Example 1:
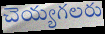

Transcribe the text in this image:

చెయ్యగలరు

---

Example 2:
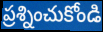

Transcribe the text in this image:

ప్రశ్నించుకోండి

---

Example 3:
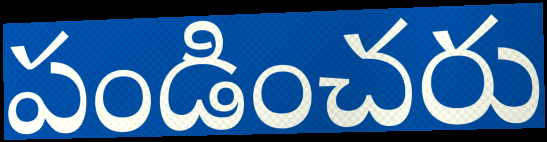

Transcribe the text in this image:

పండించరు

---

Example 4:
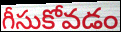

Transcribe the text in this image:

గీసుకోవడం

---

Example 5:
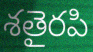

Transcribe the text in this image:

శతైరపి